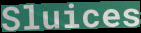
Sluices